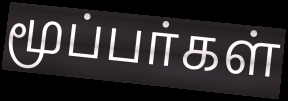
மூப்பர்கள்